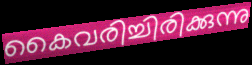
കൈവരിച്ചിരിക്കുന്നു